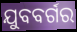
ଯୁବବର୍ଗର